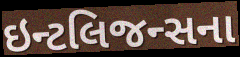
ઇન્ટલિજન્સના